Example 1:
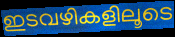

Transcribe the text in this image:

ഇടവഴികളിലൂടെ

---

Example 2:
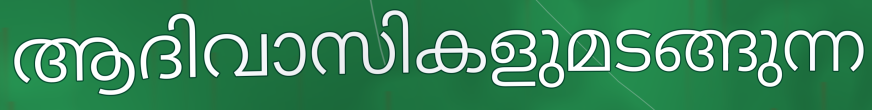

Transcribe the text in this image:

ആദിവാസികളുമടങ്ങുന്ന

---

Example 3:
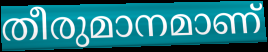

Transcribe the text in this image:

തീരുമാനമാണ്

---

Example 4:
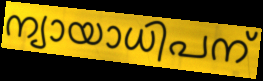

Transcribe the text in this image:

ന്യായാധിപന്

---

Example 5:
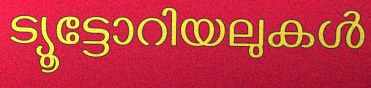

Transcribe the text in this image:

ട്യൂട്ടോറിയലുകൾ